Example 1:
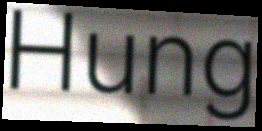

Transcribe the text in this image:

Hung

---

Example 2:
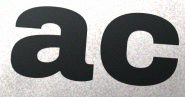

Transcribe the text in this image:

ac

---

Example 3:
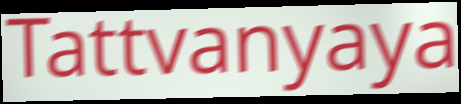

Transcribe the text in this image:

Tattvanyaya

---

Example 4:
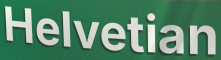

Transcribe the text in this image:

Helvetian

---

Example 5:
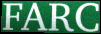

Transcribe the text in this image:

FARC